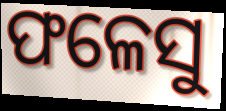
ଫଳେସୁ